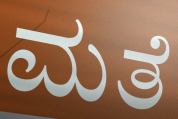
ಮತೆ